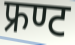
फ्रण्ट